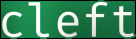
cleft